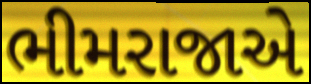
ભીમરાજાએ